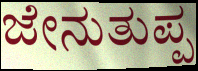
ಜೇನುತುಪ್ಪ